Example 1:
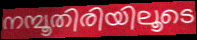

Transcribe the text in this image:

നമ്പൂതിരിയിലൂടെ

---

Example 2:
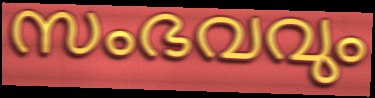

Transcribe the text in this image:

സംഭവവും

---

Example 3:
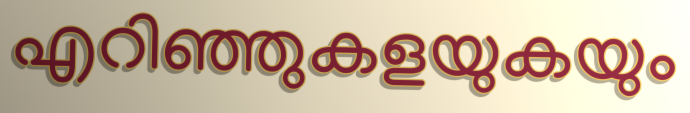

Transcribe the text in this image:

എറിഞ്ഞുകളയുകയും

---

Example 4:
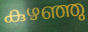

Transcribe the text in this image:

കുഴഞ്ഞു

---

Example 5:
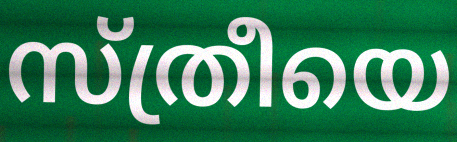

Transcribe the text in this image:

സ്ത്രീയെ